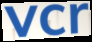
vcr